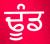
ਢੂੰਡ